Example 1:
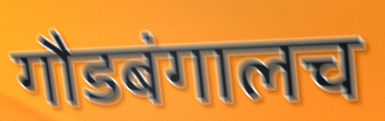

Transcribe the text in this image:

गौडबंगालच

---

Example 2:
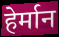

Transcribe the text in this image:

हेर्मान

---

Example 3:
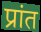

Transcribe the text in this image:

प्रांत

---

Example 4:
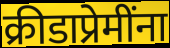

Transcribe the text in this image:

क्रीडाप्रेमींना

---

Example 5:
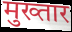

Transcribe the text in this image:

मुख्तार